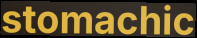
stomachic